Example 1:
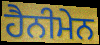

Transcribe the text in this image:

ਹੈਨੀਮੇਨ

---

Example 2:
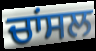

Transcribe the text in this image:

ਚਾਂਸਲ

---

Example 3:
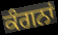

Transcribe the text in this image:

ਕੰਗਨਾਂ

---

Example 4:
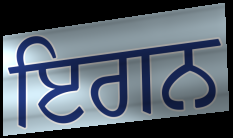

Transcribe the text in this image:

ਇਗਨ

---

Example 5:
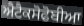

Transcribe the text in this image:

ਐਟੈਕਸੋਫੋਬੀਆ